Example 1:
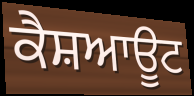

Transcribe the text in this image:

ਕੈਸ਼ਆਊਟ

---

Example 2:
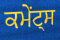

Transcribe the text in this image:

ਕਮੇਂਟ੍ਸ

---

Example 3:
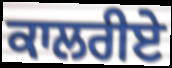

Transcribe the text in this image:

ਕਾਲਰੀਏ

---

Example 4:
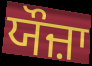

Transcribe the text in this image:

ਯੌਜ਼ਾ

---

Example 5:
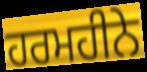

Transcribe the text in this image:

ਹਰਮਹੀਨੇ